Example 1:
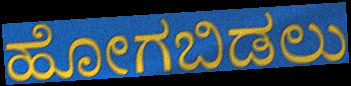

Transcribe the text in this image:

ಹೋಗಬಿಡಲು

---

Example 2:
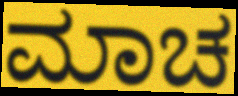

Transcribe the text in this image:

ಮಾಚ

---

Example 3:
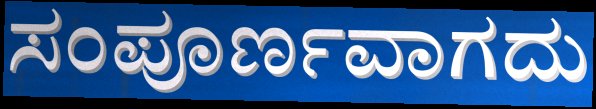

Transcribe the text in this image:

ಸಂಪೂರ್ಣವಾಗದು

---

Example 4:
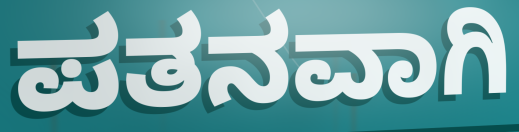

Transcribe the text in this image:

ಪತನವಾಗಿ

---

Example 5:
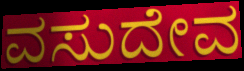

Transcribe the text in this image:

ವಸುದೇವ